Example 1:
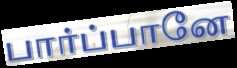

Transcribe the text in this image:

பார்ப்பானே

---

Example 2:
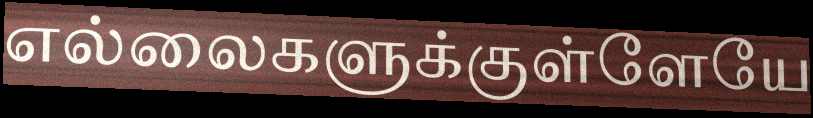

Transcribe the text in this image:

எல்லைகளுக்குள்ளேயே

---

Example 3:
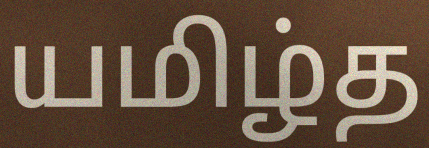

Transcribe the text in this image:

யமிழ்த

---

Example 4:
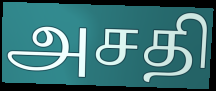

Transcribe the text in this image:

அசதி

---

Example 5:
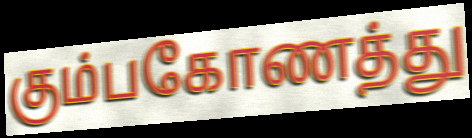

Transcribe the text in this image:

கும்பகோணத்து